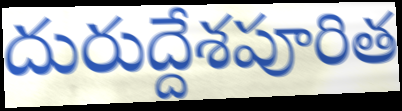
దురుద్దేశపూరిత